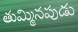
తుమ్మినపుడు